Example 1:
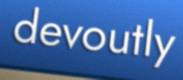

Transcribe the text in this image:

devoutly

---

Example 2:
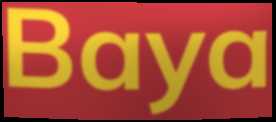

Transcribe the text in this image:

Baya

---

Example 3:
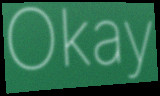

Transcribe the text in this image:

Okay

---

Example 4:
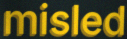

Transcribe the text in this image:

misled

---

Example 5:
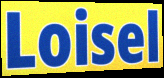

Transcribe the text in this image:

Loisel